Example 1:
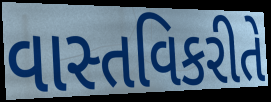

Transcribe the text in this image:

વાસ્તવિકરીતે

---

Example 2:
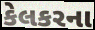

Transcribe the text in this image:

કેલકરના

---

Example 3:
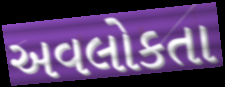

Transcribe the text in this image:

અવલોકતા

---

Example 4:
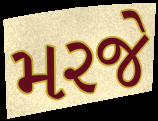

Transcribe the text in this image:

મરજે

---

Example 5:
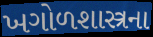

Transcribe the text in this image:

ખગોળશાસ્ત્રના